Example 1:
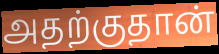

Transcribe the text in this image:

அதற்குதான்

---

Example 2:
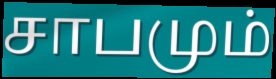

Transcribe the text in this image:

சாபமும்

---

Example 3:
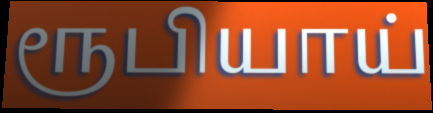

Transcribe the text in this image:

ரூபியாய்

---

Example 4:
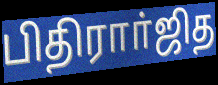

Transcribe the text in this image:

பிதிரார்ஜித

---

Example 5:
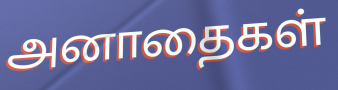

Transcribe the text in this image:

அனாதைகள்